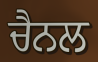
ਚੈਨਲ